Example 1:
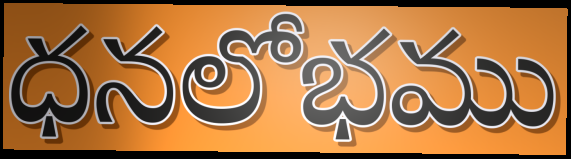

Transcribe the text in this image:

ధనలోభము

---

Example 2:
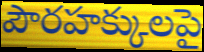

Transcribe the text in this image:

పౌరహక్కులపై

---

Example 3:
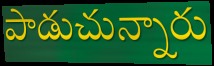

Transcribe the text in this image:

పాడుచున్నారు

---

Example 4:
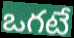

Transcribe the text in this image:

ఒగటే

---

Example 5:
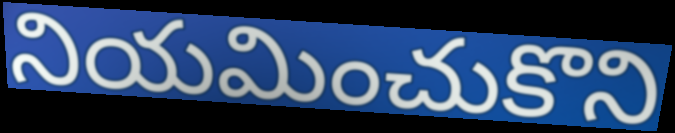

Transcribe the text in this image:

నియమించుకొని